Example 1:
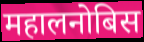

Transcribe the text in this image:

महालनोबिस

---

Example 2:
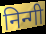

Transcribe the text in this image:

निन्गी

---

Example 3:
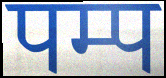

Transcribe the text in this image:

पम्प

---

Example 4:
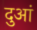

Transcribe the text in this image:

दुआं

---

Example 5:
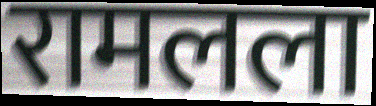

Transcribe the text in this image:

रामलला